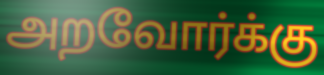
அறவோர்க்கு